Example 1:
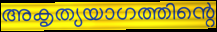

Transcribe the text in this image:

അകൃത്യയാഗത്തിന്റെ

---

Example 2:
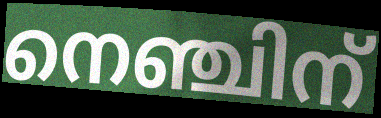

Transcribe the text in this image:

നെഞ്ചിന്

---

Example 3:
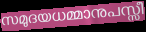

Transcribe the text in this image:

സമുദയധമ്മാനുപസ്സീ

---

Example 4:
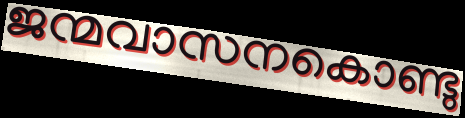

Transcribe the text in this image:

ജന്മവാസനകൊണ്ടു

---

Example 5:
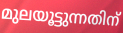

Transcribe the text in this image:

മുലയൂട്ടുന്നതിന്